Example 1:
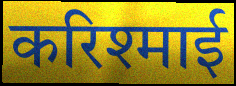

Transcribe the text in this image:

करिश्माई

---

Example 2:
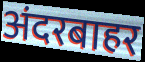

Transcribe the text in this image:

अंदरबाहर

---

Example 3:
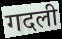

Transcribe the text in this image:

गदली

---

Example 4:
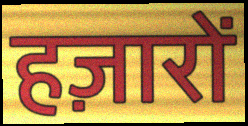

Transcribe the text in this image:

हज़ारों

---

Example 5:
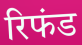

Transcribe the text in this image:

रिफंड